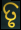
ତୃ